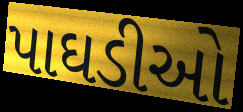
પાઘડીઓ